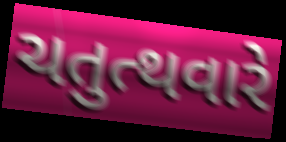
ચતુત્થવારે